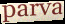
parva